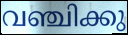
വഞ്ചിക്കു